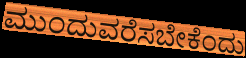
ಮುಂದುವರೆಸಬೇಕೆಂದು